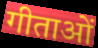
गीताओं